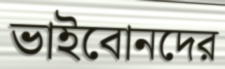
ভাইবোনদের